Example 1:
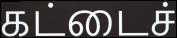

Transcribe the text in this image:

கட்டைச்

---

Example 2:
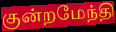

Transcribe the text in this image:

குன்றமேந்தி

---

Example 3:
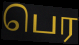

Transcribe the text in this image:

பெர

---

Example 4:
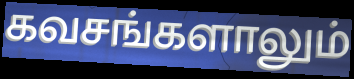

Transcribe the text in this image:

கவசங்களாலும்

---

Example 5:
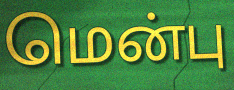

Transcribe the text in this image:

மென்பு